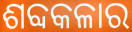
ଶବ୍ଦକଳାର